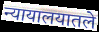
न्यायालयातले